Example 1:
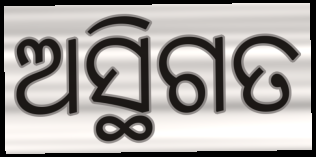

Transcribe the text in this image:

ଅସ୍ଥିଗତ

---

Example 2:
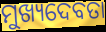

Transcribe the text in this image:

ମୁଖ୍ୟଦେବତା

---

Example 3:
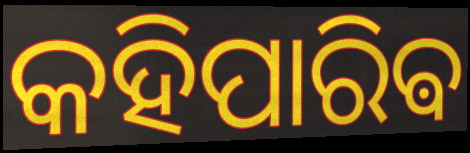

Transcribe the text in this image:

କହିପାରିଵ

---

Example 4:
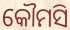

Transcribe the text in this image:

କୌମସି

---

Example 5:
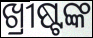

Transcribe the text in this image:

ଖ୍ରୀଷ୍ଟଙ୍କ